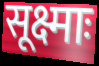
सूक्ष्माः